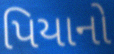
પિયાનો